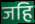
जहि